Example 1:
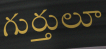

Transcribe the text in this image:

గుర్తులూ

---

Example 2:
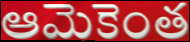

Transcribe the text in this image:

ఆమెకెంత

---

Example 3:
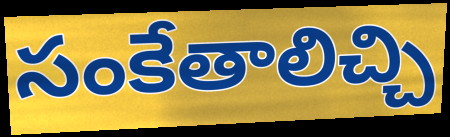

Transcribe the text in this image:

సంకేతాలిచ్చి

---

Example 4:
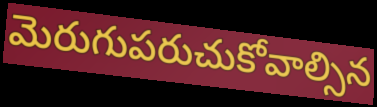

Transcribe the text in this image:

మెరుగుపరుచుకోవాల్సిన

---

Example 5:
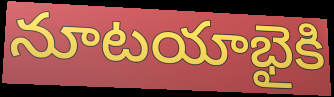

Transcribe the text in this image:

నూటయాభైకి